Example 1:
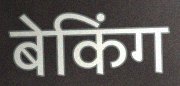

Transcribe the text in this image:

बेकिंग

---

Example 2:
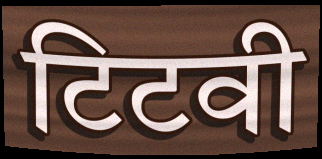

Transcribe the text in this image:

टिटवी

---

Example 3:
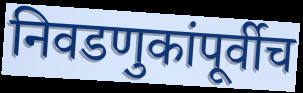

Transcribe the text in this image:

निवडणुकांपूर्वीच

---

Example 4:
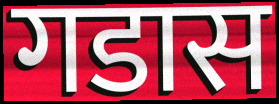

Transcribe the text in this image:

गडास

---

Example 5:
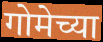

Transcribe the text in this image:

गोमेच्या